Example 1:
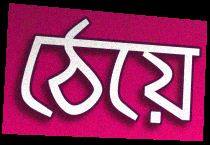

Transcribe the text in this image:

ঠেয়ে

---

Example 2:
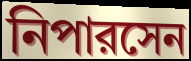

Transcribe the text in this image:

নিপারসেন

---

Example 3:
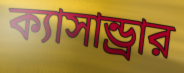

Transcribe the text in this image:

ক্যাসান্ড্রার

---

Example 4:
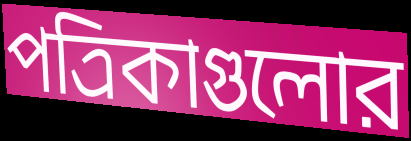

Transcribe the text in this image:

পত্রিকাগুলোর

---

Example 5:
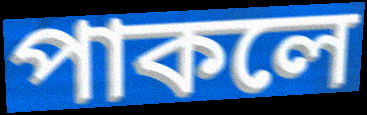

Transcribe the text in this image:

পাকলে